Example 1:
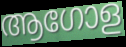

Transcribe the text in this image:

ആഗോള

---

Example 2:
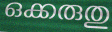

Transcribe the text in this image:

ഒക്കരുതു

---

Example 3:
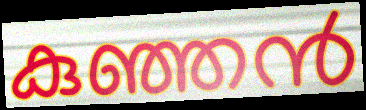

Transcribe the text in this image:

കുഞ്ഞൻ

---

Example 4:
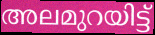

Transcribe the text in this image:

അലമുറയിട്ട്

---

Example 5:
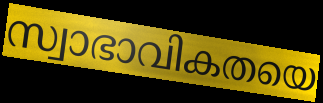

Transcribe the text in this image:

സ്വാഭാവികതയെ